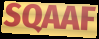
SQAAF